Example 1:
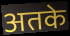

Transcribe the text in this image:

अतके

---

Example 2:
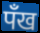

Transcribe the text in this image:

पँख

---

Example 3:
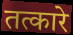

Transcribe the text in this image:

तत्कारे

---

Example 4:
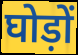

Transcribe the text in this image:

घोड़ों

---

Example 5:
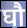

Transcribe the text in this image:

घौ